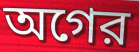
অগের